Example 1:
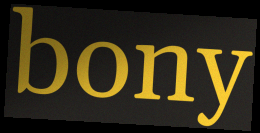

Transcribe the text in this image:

bony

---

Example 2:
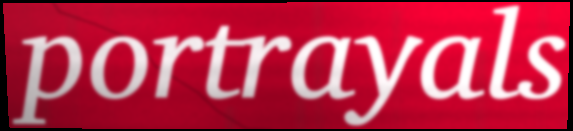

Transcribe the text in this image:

portrayals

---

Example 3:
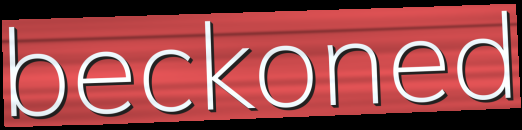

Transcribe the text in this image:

beckoned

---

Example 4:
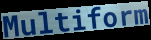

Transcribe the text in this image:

Multiform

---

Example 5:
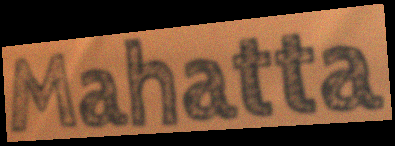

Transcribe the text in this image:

Mahatta